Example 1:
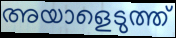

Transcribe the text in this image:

അയാളെടുത്ത്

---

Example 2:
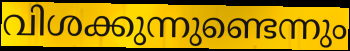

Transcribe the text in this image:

വിശക്കുന്നുണ്ടെന്നും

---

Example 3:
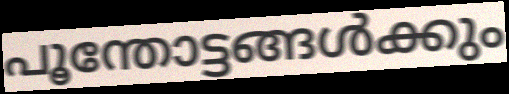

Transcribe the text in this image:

പൂന്തോട്ടങ്ങൾക്കും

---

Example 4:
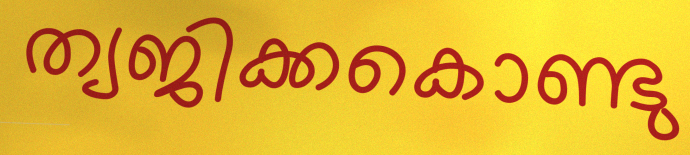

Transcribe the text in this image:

ത്യജിക്കകൊണ്ടു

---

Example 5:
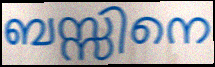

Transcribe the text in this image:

ബസ്സിനെ